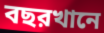
বছরখানে